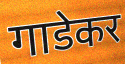
गाडेकर